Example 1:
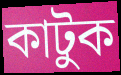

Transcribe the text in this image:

কাটুক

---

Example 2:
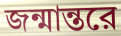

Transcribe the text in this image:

জন্মান্তরে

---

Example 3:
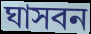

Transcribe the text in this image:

ঘাসবন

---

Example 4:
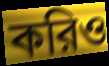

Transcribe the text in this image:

করিও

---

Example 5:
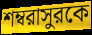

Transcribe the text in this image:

শম্বরাসুরকে